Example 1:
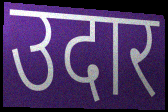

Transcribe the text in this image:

उदार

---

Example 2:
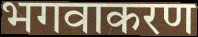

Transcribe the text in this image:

भगवाकरण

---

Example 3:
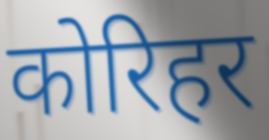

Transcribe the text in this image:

कोरिहर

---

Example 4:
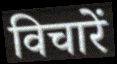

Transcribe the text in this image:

विचारें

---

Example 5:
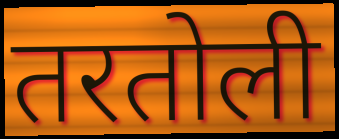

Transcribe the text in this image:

तरतोली